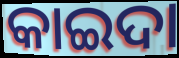
କାଇଦା